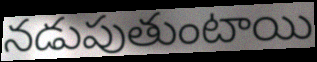
నడుపుతుంటాయి